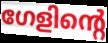
ഗേളിന്റെ